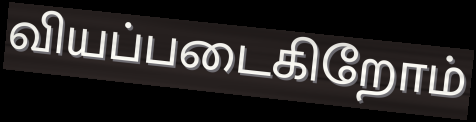
வியப்படைகிறோம்